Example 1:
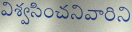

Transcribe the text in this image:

విశ్వసించనివారిని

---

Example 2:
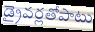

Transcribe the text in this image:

డ్రైవర్లతోపాటు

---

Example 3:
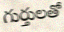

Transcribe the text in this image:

గుర్తులతో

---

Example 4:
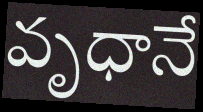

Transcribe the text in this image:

వృధానే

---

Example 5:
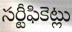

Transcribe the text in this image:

సర్టీఫికెట్లు